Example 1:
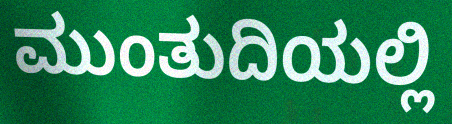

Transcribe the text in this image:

ಮುಂತುದಿಯಲ್ಲಿ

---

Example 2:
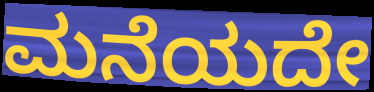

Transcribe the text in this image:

ಮನೆಯದೇ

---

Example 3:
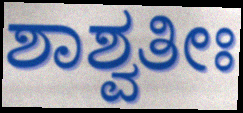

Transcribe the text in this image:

ಶಾಶ್ವತೀಃ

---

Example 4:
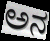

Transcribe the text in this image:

ಅನ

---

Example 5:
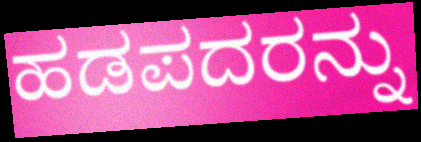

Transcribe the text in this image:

ಹಡಪದರನ್ನು